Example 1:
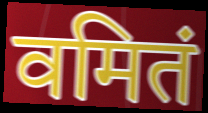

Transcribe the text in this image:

वमितं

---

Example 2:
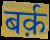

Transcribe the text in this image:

बर्क़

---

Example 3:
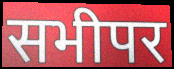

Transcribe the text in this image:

सभीपर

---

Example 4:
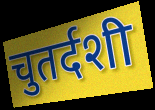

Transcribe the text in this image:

चुतर्दशी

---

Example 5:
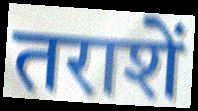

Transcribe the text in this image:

तराशें